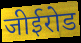
जीईरोड